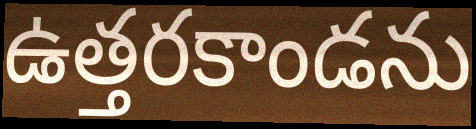
ఉత్తరకాండను